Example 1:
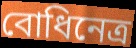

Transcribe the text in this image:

বোধিনেত্ৰ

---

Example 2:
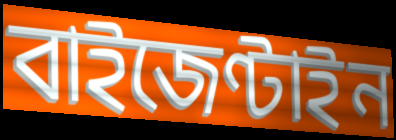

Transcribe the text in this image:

বাইজেণ্টাইন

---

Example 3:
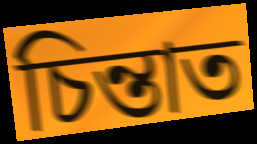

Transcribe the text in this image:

চিন্তাত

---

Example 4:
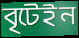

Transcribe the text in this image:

বৃটেইন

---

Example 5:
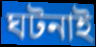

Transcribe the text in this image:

ঘটনাই